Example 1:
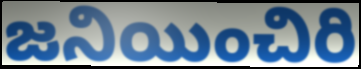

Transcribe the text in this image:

జనియించిరి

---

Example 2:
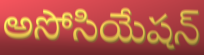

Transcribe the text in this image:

అసోసియేషన్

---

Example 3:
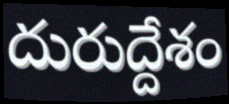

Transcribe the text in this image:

దురుద్దేశం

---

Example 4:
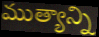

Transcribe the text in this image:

ముత్యాన్ని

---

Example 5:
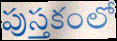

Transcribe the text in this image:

పుస్తకంలో